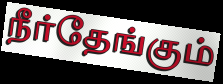
நீர்தேங்கும்